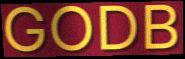
GODB